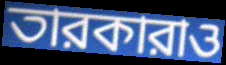
তারকারাও